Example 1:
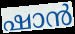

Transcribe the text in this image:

ഷാൻ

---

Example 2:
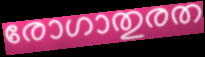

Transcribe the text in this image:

രോഗാതുരത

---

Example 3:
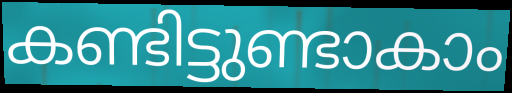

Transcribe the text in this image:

കണ്ടിട്ടുണ്ടാകാം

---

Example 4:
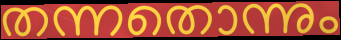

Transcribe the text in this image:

തന്നതൊന്നും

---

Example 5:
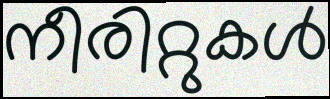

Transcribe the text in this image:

നീരിറ്റുകൾ